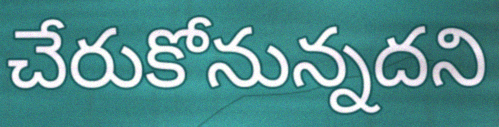
చేరుకోనున్నదని